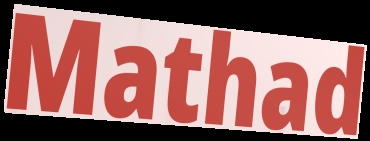
Mathad